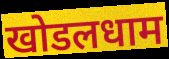
खोडलधाम